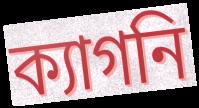
ক্যাগনি